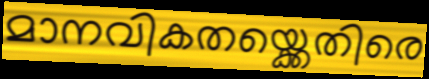
മാനവികതയ്ക്കെതിരെ